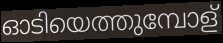
ഓടിയെത്തുമ്പോള്